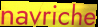
navriche